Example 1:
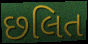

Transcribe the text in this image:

છલિત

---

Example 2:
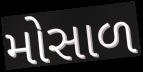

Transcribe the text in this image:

મોસાળ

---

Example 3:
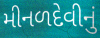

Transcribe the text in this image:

મીનળદેવીનું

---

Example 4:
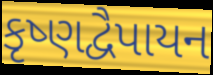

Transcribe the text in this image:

કૃષ્ણદ્વૈપાયન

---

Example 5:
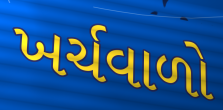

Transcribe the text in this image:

ખર્ચવાળો